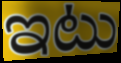
ఇటు